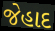
જેહાદ